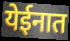
येईनात